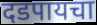
दडपायचा